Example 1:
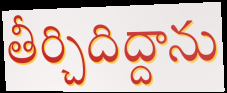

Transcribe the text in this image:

తీర్చిదిద్దాను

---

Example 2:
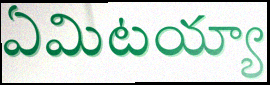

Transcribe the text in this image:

ఏమిటయ్యా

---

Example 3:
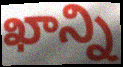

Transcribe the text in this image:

ఖాన్ని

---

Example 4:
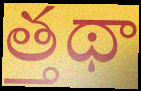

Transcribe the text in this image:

త్తథా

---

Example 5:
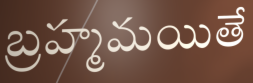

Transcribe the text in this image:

బ్రహ్మమయితే